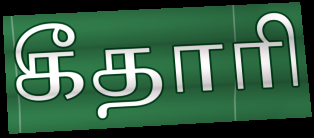
கீதாரி